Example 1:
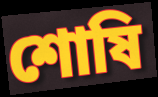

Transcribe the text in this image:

শোষি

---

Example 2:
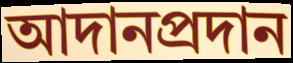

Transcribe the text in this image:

আদানপ্রদান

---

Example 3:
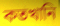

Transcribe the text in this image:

কতখানি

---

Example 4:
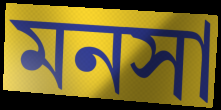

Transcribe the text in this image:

মনসা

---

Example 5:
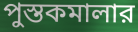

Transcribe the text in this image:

পুস্তকমালার